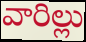
వారిల్లు